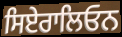
ਸਿਏਰਾਲਿਓਨ